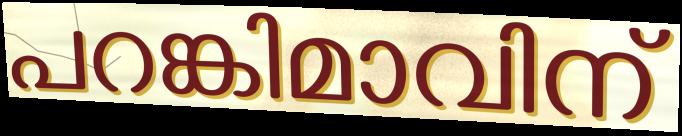
പറങ്കിമാവിന്